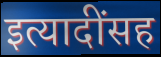
इत्यादींसह